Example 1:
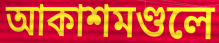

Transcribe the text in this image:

আকাশমণ্ডলে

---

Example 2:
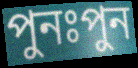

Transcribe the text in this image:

পুনঃপুন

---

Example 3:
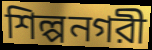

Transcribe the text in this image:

শিল্পনগরী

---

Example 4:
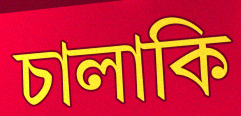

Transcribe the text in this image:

চালাকি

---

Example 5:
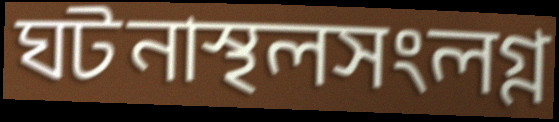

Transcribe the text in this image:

ঘটনাস্থলসংলগ্ন